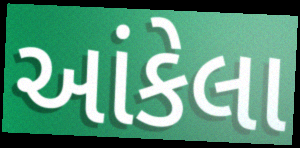
આંકેલા